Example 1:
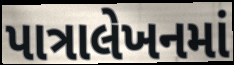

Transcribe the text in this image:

પાત્રાલેખનમાં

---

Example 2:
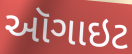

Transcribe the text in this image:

ઑગાઇટ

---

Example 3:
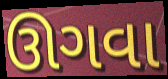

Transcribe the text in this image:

ઊગવા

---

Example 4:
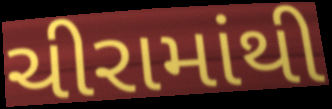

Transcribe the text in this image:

ચીરામાંથી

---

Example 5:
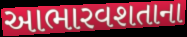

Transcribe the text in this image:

આભારવશતાના